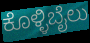
ಕೊಳ್ಳಿಬೈಲು